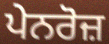
ਪੇਨਰੋਜ਼